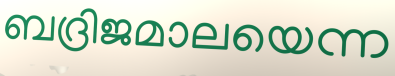
ബദ്രിജമാലയെന്ന